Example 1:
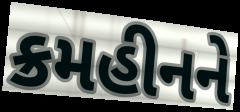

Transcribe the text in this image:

ક્રમહીનને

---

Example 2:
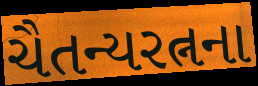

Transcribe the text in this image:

ચૈતન્યરત્નના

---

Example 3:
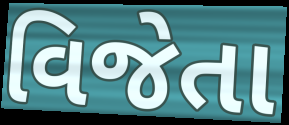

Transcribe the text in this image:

વિજેતા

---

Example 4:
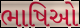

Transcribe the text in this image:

ભાષિઓ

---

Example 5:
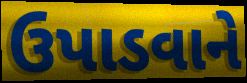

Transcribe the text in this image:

ઉપાડવાને